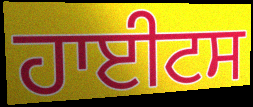
ਹਾਈਟਸ